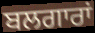
ਬਲਗਾਰਾਂ